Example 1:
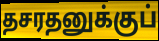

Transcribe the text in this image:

தசரதனுக்குப்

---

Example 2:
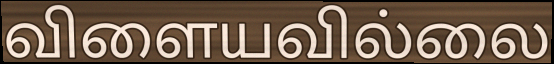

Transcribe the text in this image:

விளையவில்லை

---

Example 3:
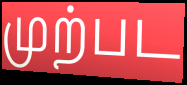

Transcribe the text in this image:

முற்பட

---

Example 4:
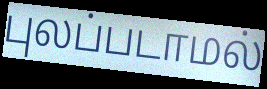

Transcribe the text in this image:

புலப்படாமல்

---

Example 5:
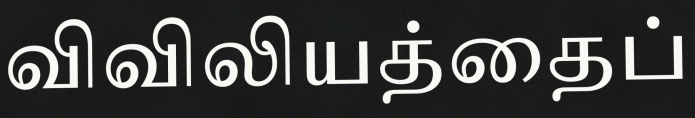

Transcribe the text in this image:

விவிலியத்தைப்